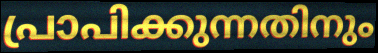
പ്രാപിക്കുന്നതിനും